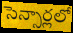
సెన్సార్లలో